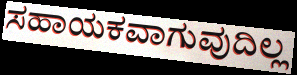
ಸಹಾಯಕವಾಗುವುದಿಲ್ಲ